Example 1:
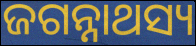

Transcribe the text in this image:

ଜଗନ୍ନାଥସ୍ୟ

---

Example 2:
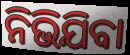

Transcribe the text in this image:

ନିଭିଯିବା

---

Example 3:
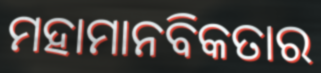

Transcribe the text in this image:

ମହାମାନବିକତାର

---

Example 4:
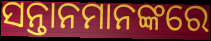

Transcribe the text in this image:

ସନ୍ତାନମାନଙ୍କରେ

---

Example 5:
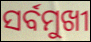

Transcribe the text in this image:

ସର୍ବମୁଖୀ